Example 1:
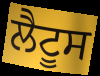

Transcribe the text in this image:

ਲੈਟੂਸ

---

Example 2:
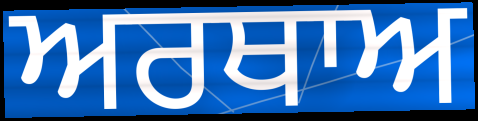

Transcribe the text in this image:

ਅਰਥਾਅ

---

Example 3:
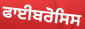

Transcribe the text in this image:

ਫਾਈਬਰੋਸਿਸ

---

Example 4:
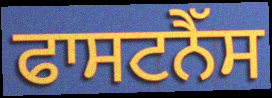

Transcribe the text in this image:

ਫਾਸਟਨੈੱਸ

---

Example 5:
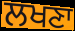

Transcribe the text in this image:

ਲਖਣਾ